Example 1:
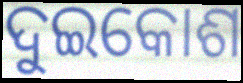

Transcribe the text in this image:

ଦୁଇକୋଶ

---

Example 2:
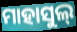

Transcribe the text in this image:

ମାହାସୁଲ୍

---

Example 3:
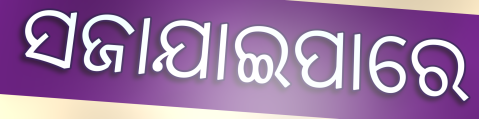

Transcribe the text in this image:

ସଜାଯାଇପାରେ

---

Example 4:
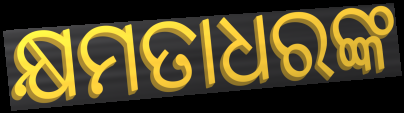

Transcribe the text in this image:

କ୍ଷମତାଧରଙ୍କ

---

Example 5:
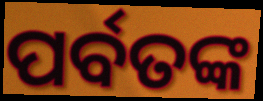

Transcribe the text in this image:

ପର୍ବତଙ୍କ